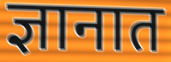
ज्ञानात